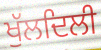
ਖੁੱਲਦਿਲੀ